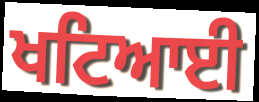
ਖਟਿਆਈ